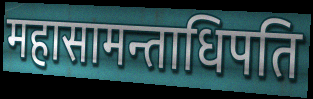
महासामन्ताधिपति